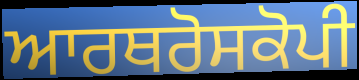
ਆਰਥਰੋਸਕੋਪੀ